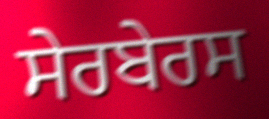
ਸੇਰਬੇਰਸ